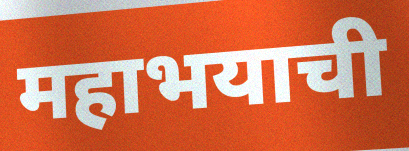
महाभयाची